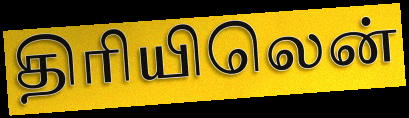
திரியிலென்